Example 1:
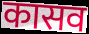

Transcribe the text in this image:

कासव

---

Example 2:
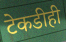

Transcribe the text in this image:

टेकडीही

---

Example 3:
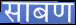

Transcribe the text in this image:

साबण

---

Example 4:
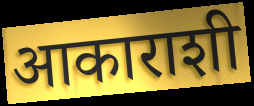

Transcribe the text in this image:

आकाराशी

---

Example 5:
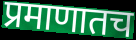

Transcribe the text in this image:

प्रमाणातच